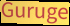
Guruge